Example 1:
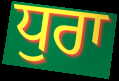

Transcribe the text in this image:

ਧੁਰਾ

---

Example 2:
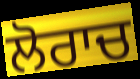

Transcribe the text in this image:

ਲੋਰਾਚ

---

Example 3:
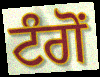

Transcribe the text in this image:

ਟੰਗੋਂ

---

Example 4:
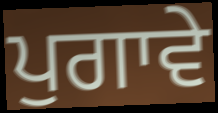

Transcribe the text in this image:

ਪੁਗਾਵੇ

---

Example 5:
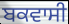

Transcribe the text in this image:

ਬਕਵਾਸੀ